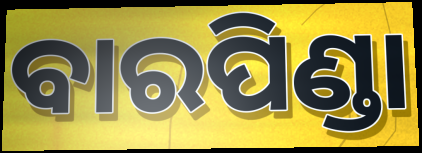
ବାରପିଣ୍ଡା